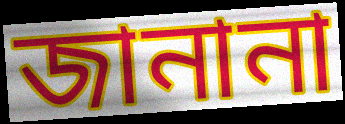
জানানা